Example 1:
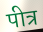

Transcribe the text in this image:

पीत्र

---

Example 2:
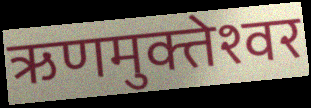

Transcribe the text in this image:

ऋणमुक्तेश्वर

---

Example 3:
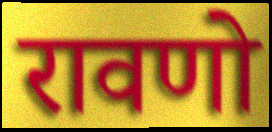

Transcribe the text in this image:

रावणो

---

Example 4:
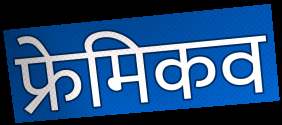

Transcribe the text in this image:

फ्रेमिकव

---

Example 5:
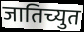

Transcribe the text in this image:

जातिच्युत